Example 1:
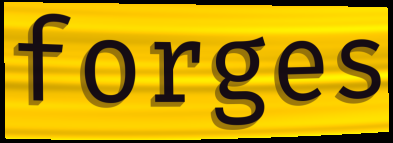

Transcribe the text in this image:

forges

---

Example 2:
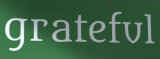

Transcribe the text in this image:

grateful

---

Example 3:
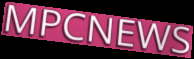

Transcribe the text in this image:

MPCNEWS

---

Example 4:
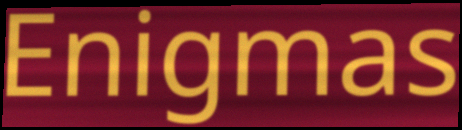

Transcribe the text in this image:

Enigmas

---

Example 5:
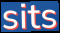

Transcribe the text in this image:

sits